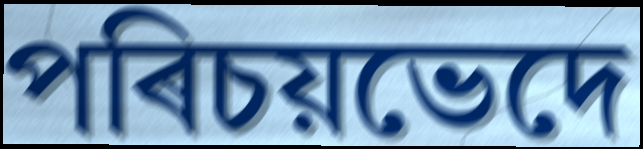
পৰিচয়ভেদে